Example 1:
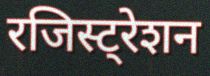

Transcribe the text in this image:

रजिस्ट्रेशन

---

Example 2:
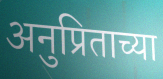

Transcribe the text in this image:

अनुप्रिताच्या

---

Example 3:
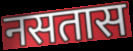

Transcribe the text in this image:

नसतास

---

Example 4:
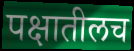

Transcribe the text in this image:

पक्षातीलच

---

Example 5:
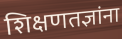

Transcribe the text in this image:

शिक्षणतज्ञांना